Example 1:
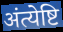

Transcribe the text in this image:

अंत्येष्टि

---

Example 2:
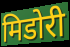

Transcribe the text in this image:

मिडोरी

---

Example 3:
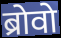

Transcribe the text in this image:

ब्रोवो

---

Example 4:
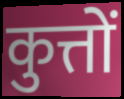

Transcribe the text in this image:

कुत्तों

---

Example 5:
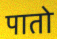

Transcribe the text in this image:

पातो